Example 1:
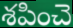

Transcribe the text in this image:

శపించె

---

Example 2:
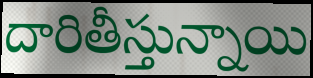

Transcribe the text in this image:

దారితీస్తున్నాయి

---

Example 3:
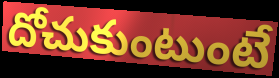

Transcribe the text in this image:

దోచుకుంటుంటే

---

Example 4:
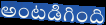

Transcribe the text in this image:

అంటడిగింది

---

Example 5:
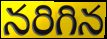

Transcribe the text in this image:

నరిగిన